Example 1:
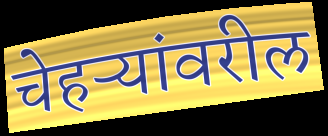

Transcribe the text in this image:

चेहऱ्यांवरील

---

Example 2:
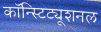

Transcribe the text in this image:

कॉन्स्टिट्यूशनल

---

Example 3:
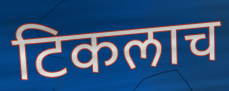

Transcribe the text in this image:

टिकलाच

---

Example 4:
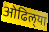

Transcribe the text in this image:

ओढिल्या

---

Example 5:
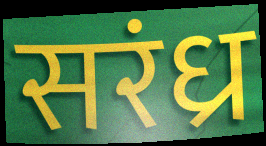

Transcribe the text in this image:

सरंध्र